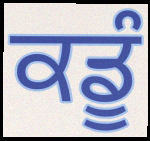
ਕਡੂੰ